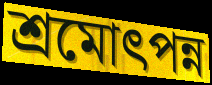
শ্রমোৎপন্ন